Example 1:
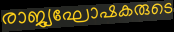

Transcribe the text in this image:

രാജ്യഘോഷകരുടെ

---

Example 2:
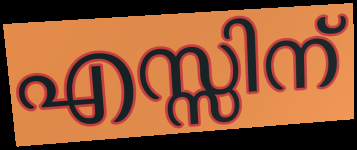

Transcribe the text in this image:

എസ്സിന്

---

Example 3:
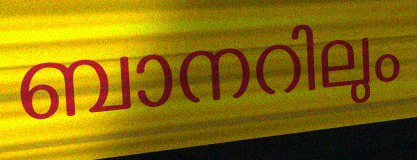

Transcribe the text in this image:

ബാനറിലും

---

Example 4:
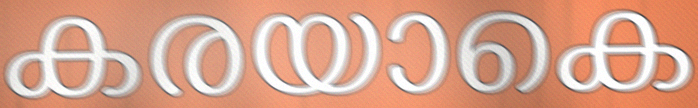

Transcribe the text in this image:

കരയാകെ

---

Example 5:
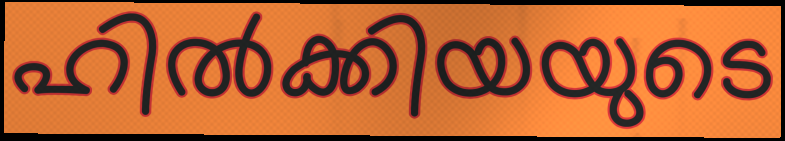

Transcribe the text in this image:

ഹിൽക്കിയയുടെ